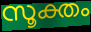
സൂക്തം